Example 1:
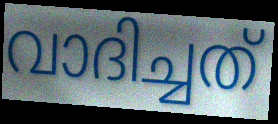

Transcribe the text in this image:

വാദിച്ചത്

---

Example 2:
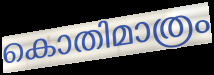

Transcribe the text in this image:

കൊതിമാത്രം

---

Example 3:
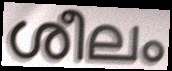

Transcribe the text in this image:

ശീലം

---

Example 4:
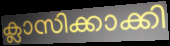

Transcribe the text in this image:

ക്ലാസിക്കാക്കി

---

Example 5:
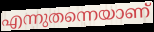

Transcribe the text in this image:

എന്നുതന്നെയാണ്